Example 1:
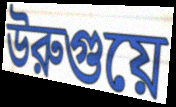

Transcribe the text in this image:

উরুগুয়ে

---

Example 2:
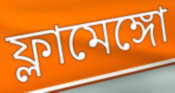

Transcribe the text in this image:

ফ্লামেঙ্গো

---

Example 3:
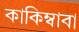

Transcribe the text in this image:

কাকিম্বাবা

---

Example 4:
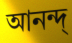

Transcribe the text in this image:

আনন্দ্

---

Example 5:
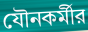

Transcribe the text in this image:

যৌনকর্মীর